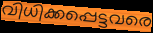
വിധിക്കപ്പെട്ടവരെ